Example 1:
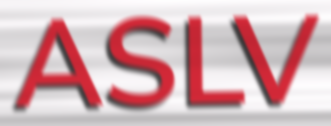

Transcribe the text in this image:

ASLV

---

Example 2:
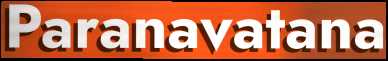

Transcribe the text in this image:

Paranavatana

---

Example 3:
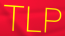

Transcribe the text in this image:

TLP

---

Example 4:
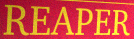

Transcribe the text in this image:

REAPER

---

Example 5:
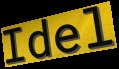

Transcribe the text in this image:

Idel